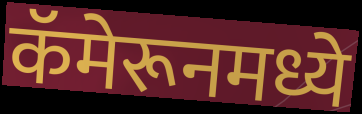
कॅमेरूनमध्ये